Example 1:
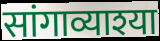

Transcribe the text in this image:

सांगाव्याश्या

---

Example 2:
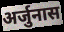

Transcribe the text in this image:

अर्जुनास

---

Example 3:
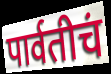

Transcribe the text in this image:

पार्वतीचं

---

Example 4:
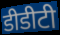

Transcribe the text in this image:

डीडीटी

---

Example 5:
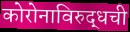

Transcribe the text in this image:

कोरोनाविरुद्धची